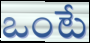
ఒంటే